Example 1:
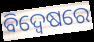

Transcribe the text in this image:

ବିଦ୍ୱେଷରେ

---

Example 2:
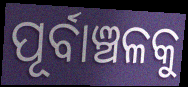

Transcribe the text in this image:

ପୂର୍ବାଞ୍ଚଳକୁ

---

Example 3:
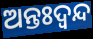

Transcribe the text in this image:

ଅନ୍ତଃଦ୍ବନ୍ଦ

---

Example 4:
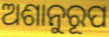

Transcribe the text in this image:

ଅଶାନୁରୂପ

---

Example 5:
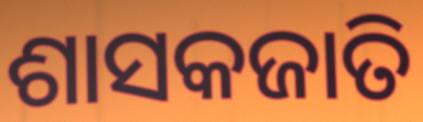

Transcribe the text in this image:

ଶାସକଜାତି